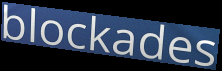
blockades